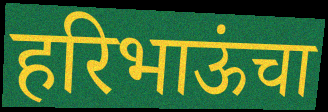
हरिभाऊंचा